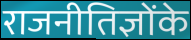
राजनीतिज्ञोंके